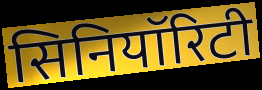
सिनियॉरिटी